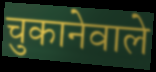
चुकानेवाले